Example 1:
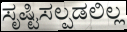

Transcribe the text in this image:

ಸೃಷ್ಟಿಸಲ್ಪಡಲಿಲ್ಲ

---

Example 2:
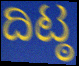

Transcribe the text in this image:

ದಿಟ್ಠ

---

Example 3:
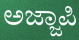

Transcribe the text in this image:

ಅಜ್ಜಾಪಿ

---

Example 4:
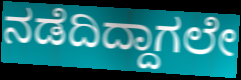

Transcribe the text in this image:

ನಡೆದಿದ್ದಾಗಲೇ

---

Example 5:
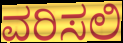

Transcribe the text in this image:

ವರಿಸಲಿ